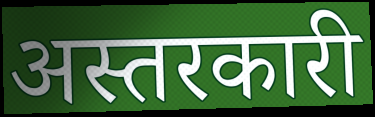
अस्तरकारी